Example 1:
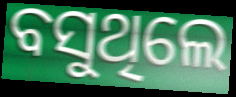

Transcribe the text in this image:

ବସୁଥିଲେ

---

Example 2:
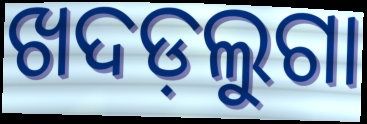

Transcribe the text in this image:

ଖଦଡ଼ଲୁଗା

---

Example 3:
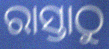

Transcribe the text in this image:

ରାସ୍ତାଠୁ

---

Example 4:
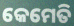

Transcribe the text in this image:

କେମେତି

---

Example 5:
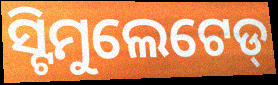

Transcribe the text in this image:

ସ୍ଟିମୁଲେଟେଡ୍